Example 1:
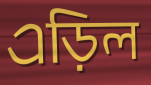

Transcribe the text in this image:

এড়িল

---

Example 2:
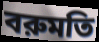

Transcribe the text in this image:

বরুমতি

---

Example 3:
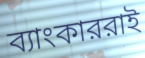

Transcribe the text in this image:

ব্যাংকাররাই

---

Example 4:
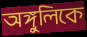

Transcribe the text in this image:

অঙ্গুলিকে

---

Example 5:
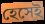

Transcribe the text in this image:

হেসেই